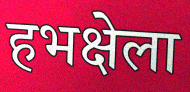
हभक्षेला